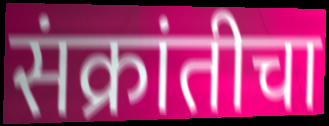
संक्रांतीचा